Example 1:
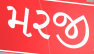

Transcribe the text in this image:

મરજી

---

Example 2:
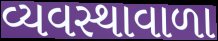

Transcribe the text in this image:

વ્યવસ્થાવાળા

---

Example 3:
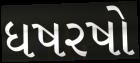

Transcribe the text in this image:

ધષરષો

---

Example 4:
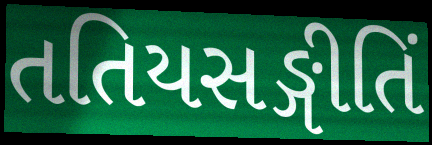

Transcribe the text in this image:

તતિયસઙ્ગીતિં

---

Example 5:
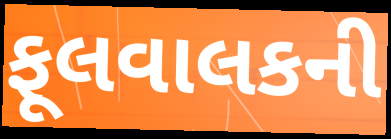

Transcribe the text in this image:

ફૂલવાલકની